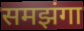
समझंगा